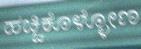
ಹಚ್ಚಿಕೊಳ್ಳೋಣ